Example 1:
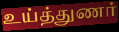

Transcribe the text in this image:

உய்த்துணர்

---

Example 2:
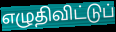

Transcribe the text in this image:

எழுதிவிட்டுப்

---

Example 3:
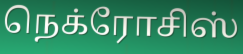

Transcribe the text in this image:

நெக்ரோசிஸ்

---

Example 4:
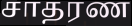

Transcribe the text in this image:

சாதரண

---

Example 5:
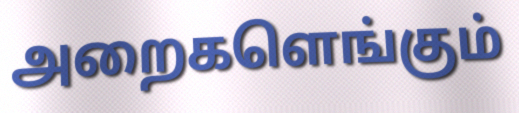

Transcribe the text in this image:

அறைகளெங்கும்